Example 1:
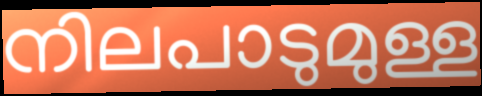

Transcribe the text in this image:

നിലപാടുമുള്ള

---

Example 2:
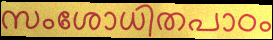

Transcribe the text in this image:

സംശോധിതപാഠം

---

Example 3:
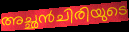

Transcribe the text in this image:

അച്ഛൻചിരിയുടെ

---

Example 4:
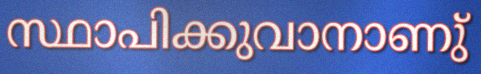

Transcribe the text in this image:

സ്ഥാപിക്കുവാനാണു്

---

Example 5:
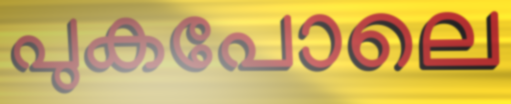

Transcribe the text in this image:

പുകപോലെ